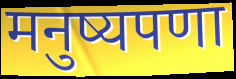
मनुष्यपणा